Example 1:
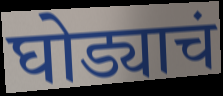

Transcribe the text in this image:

घोड्याचं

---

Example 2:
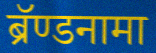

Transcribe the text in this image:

ब्रॅण्डनामा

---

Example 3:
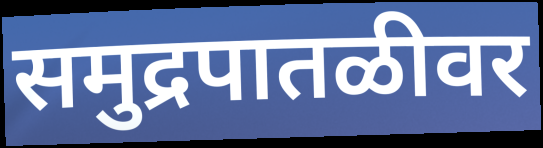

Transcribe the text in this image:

समुद्रपातळीवर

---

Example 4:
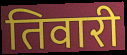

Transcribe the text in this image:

तिवारी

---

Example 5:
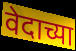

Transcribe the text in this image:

वेदाच्या